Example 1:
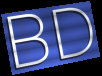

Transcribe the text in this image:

BD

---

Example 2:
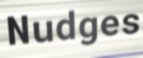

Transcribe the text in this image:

Nudges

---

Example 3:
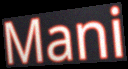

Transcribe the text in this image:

Mani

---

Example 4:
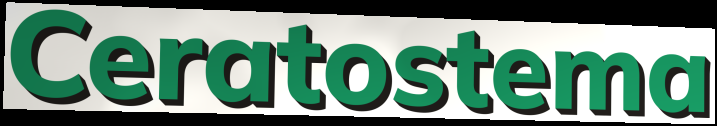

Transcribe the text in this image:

Ceratostema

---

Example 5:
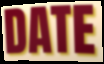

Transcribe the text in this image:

DATE